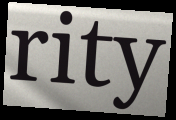
rity